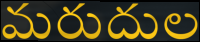
మరుదుల